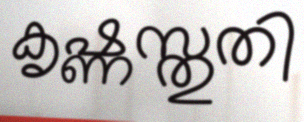
കൃഷ്ണസ്തുതി